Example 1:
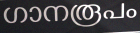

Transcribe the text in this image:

ഗാനരൂപം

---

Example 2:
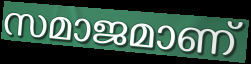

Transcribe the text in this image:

സമാജമാണ്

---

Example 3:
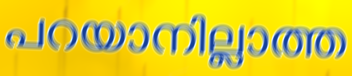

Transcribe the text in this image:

പറയാനില്ലാത്ത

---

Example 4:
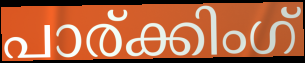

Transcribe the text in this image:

പാര്ക്കിംഗ്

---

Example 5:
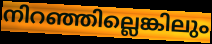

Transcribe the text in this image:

നിറഞ്ഞില്ലെങ്കിലും